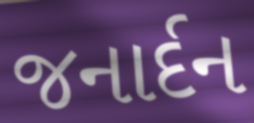
જનાર્દન